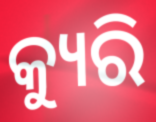
କ୍ୟୁରି